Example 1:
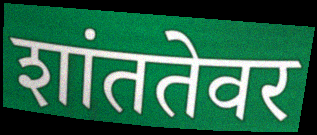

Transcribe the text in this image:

शांततेवर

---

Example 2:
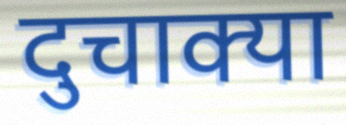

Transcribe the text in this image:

दुचाक्या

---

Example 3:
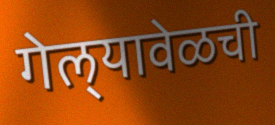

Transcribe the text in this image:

गेल्यावेळची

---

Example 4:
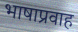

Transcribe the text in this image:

भाषाप्रवाह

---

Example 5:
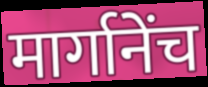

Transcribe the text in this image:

मार्गानेंच